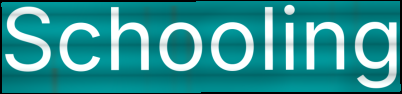
Schooling